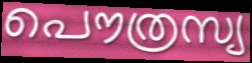
പൌത്രസ്യ